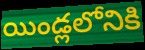
యిండ్లలోనికి